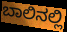
ಬಾಲಿನಲ್ಲಿ